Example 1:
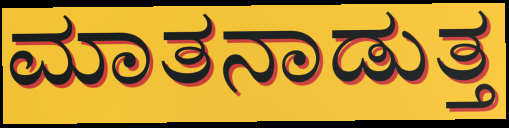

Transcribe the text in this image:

ಮಾತನಾಡುತ್ತ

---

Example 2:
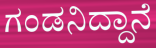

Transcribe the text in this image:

ಗಂಡನಿದ್ದಾನೆ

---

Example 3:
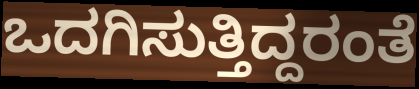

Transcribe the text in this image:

ಒದಗಿಸುತ್ತಿದ್ದರಂತೆ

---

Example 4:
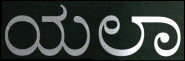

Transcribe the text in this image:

ಯಲಾ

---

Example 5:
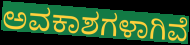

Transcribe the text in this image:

ಅವಕಾಶಗಳಾಗಿವೆ